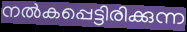
നൽകപ്പെട്ടിരിക്കുന്ന